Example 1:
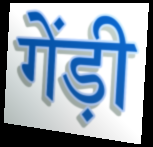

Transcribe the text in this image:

गेंड़ी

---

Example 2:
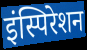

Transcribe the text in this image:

इंस्पिरेशन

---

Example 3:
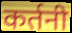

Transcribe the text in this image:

कर्तनी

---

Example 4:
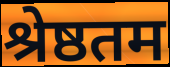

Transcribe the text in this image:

श्रेष्ठतम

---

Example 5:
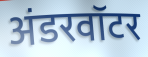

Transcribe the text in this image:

अंडरवॉटर